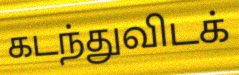
கடந்துவிடக்